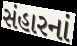
સંહારનાં